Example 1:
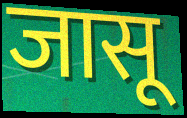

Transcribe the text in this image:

जासू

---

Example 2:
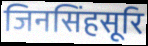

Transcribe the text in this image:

जिनसिंहसूरि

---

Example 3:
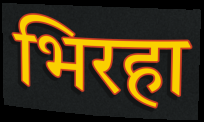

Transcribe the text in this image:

भिरहा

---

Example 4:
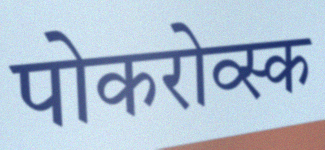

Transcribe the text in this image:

पोकरोव्स्क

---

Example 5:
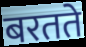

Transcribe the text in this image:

बरतते